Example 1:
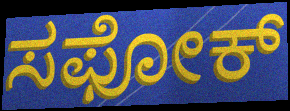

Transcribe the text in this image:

ಸಫೋಕ್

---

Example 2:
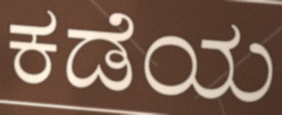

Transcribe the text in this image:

ಕಡೆಯ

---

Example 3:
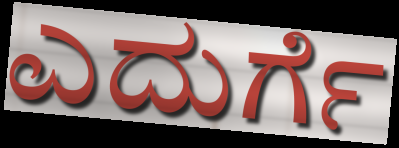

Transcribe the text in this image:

ಎದುರ್ಗೆ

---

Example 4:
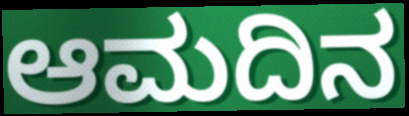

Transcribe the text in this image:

ಆಮದಿನ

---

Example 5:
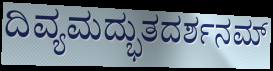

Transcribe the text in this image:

ದಿವ್ಯಮದ್ಭುತದರ್ಶನಮ್